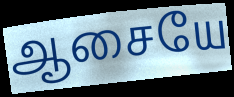
ஆசையே